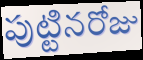
పుట్టినరోజు